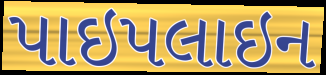
પાઇપલાઇન